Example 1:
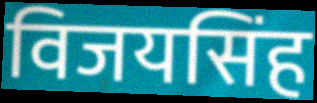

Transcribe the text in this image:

विजयसिंह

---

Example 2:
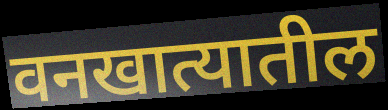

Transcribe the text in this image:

वनखात्यातील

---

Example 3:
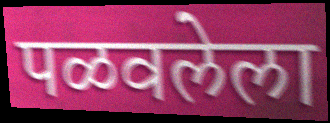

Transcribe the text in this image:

पळवलेला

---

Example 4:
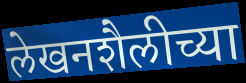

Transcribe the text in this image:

लेखनशैलीच्या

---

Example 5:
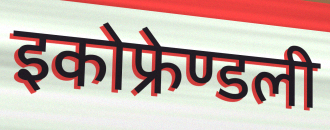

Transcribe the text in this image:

इकोफ्रेण्डली